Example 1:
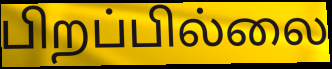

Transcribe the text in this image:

பிறப்பில்லை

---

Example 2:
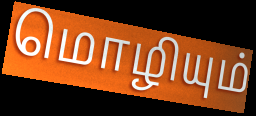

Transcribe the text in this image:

மொழியும்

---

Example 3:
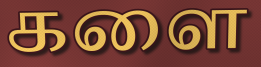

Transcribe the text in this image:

களை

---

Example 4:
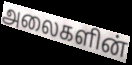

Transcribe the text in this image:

அலைகளின்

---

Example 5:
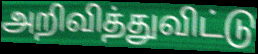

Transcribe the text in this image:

அறிவித்துவிட்டு